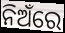
ନିଅଁରେ